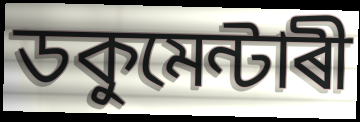
ডকুমেন্টাৰী